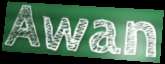
Awan